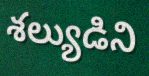
శల్యుడిని